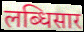
लब्धिसार